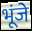
भूंजे